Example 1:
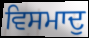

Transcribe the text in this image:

ਵਿਸਮਾਦੁ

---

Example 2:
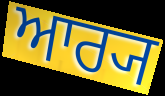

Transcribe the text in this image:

ਆਰ੍ਯ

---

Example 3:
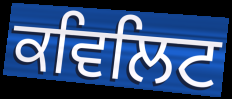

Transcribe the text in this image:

ਕਵਿਲਿਟ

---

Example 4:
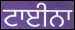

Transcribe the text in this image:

ਟਾਈਨਾ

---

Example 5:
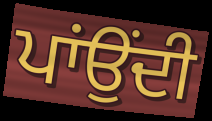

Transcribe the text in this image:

ਪਾਂਉਂਦੀ